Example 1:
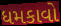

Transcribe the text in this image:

ધમકાવો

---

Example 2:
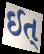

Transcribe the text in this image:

ઈત્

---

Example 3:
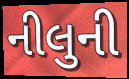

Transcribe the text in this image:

નીલુની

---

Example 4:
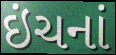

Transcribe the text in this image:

ઇંચનાં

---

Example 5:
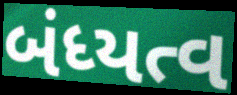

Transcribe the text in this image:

બંધ્યત્વ